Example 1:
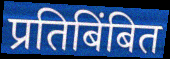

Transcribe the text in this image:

प्रतिबिंबित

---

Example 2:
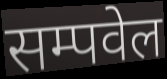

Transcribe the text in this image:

सम्पवेल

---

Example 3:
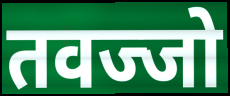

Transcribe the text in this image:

तवज्जो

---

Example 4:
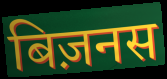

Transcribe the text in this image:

बिज़नस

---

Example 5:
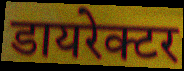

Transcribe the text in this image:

डायरेक्टर